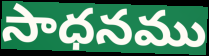
సాధనము